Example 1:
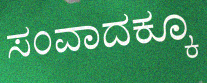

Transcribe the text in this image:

ಸಂವಾದಕ್ಕೂ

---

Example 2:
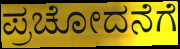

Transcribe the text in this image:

ಪ್ರಚೋದನೆಗೆ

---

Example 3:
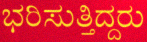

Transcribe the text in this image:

ಭರಿಸುತ್ತಿದ್ದರು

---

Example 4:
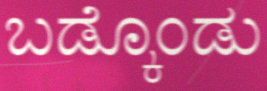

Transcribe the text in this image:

ಬಡ್ಕೊಂಡು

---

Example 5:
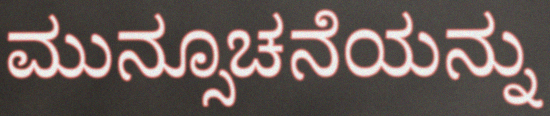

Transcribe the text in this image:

ಮುನ್ಸೂಚನೆಯನ್ನು